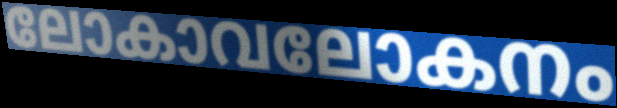
ലോകാവലോകനം